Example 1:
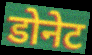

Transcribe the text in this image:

डोनेट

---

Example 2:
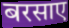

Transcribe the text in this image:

बरसाए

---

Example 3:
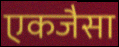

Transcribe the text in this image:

एकजैसा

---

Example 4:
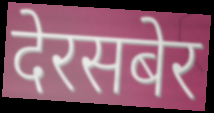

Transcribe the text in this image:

देरसबेर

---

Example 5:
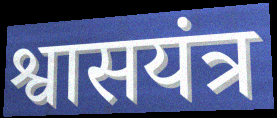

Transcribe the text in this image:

श्वासयंत्र